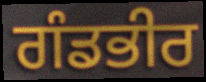
ਗੰਡਭੀਰ